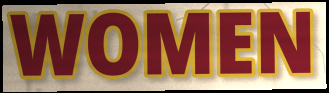
WOMEN